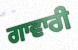
ਗਾਵਾਰੀ